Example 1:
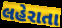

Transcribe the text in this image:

લહેરાતા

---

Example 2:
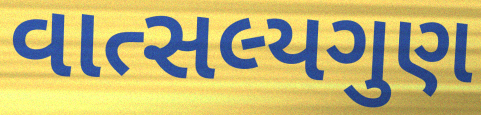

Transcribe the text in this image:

વાત્સલ્યગુણ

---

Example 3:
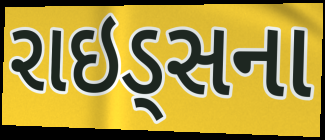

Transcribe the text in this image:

રાઇડ્સના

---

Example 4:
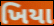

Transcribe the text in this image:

ખિયા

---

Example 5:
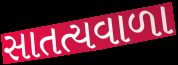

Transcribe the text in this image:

સાતત્યવાળા